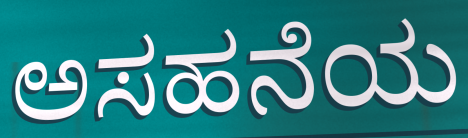
ಅಸಹನೆಯ